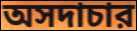
অসদাচার